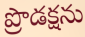
ప్రొడక్షను